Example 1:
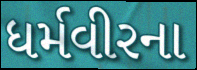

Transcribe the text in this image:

ધર્મવીરના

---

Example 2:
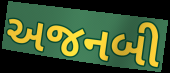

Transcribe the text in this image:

અજનબી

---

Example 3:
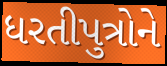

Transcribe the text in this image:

ધરતીપુત્રોને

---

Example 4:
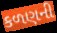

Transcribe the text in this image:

કળણની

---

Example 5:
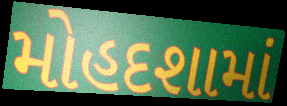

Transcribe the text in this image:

મોહદશામાં